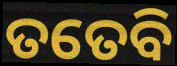
ତତେବି